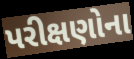
પરીક્ષણોના